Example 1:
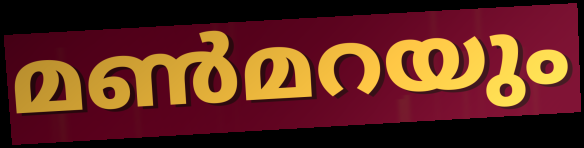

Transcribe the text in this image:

മൺമറയും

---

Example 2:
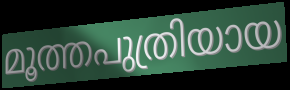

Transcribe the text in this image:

മൂത്തപുത്രിയായ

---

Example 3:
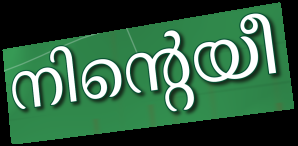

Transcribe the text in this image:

നിന്റെയീ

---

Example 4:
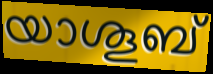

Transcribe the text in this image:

യാശൂബ്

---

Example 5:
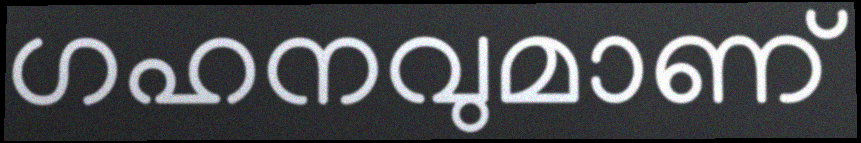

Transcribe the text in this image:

ഗഹനവുമാണ്